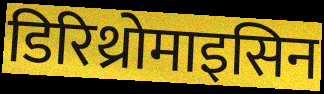
डिरिथ्रोमाइसिन